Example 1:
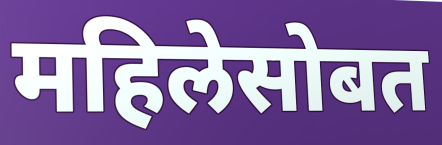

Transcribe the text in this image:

महिलेसोबत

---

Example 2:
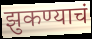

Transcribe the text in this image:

झुकण्याचं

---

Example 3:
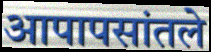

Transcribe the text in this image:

आपापसांतले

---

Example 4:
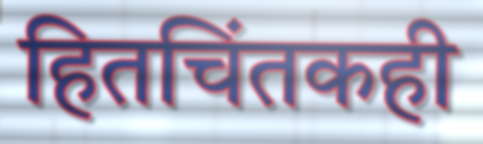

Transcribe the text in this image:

हितचिंतकही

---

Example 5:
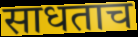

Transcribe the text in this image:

साधताच